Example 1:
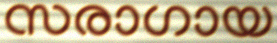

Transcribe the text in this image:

സരാഗായ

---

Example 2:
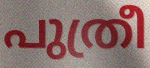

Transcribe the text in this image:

പുത്രീ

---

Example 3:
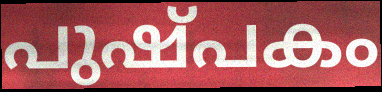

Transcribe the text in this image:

പുഷ്പകം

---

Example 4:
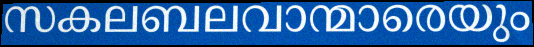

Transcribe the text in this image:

സകലബലവാന്മാരെയും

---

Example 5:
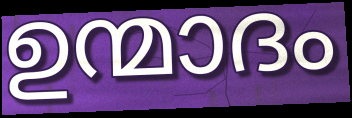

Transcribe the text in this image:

ഉന്മാദം